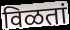
विळतां